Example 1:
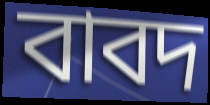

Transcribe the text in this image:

বাবদ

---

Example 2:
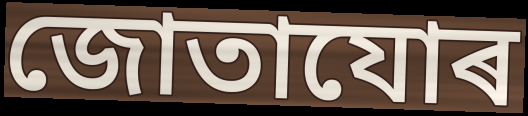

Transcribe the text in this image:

জোতাযোৰ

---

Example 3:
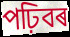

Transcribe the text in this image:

পঢ়িবৰ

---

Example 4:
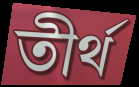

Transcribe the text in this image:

তীৰ্থ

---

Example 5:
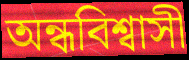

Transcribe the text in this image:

অন্ধবিশ্বাসী